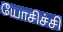
யோசிச்சி